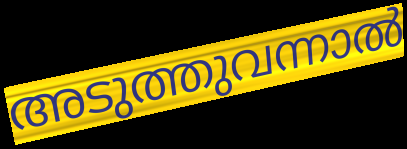
അടുത്തുവന്നാൽ